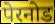
पेरनोड